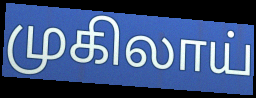
முகிலாய்